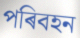
পৰিবহন